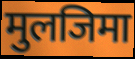
मुलजिमा